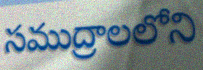
సముద్రాలలోని